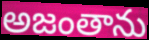
అజంతాను